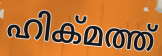
ഹിക്മത്ത്